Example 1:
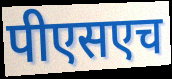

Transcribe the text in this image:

पीएसएच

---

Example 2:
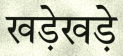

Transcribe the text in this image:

खड़ेखड़े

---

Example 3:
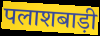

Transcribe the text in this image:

पलाशबाड़ी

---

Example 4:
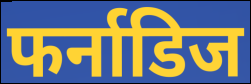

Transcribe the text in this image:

फर्नाडिज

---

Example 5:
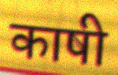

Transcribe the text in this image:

काषी